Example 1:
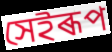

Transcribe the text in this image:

সেইৰূপ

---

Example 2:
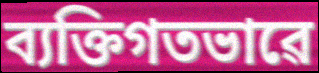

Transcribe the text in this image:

ব্যক্তিগতভাৱে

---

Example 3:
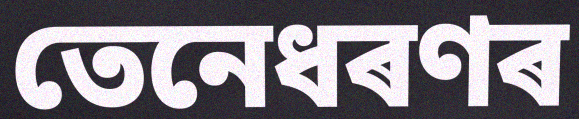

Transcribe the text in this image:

তেনেধৰণৰ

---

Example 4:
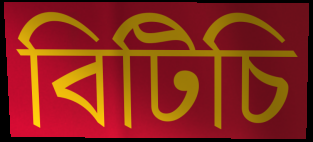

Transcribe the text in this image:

বিটিচি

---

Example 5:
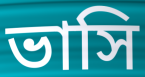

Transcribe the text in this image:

ভাসি